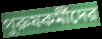
পুরুষকর্মীদের